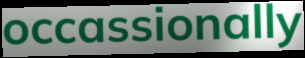
occassionally